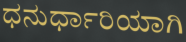
ಧನುರ್ಧಾರಿಯಾಗಿ